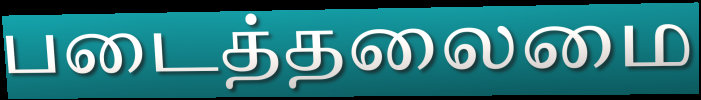
படைத்தலைமை